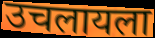
उचलायला